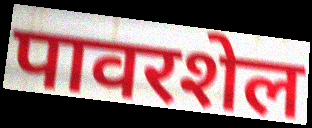
पावरशेल